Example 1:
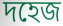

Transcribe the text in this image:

দহেজ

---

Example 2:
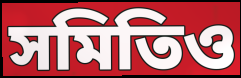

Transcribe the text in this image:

সমিতিও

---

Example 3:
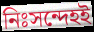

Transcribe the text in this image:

নিঃসন্দেহই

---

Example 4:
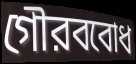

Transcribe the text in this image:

গৌরববোধ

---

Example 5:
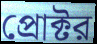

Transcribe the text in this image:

প্রোক্টর